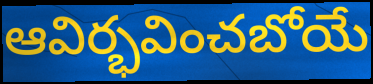
ఆవిర్భవించబోయే